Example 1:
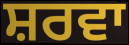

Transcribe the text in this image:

ਸ਼ਰਵਾ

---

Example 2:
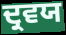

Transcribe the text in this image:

ਦ੍ਰਵਯ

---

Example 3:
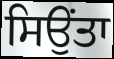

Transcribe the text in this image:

ਸਿਉਂਤਾ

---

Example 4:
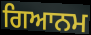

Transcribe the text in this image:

ਗਿਆਨਮ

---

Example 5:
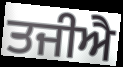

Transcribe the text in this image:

ਤਜੀਐ